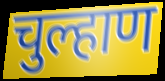
चुल्हाण